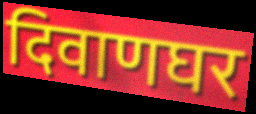
दिवाणघर